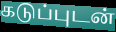
கடுப்புடன்